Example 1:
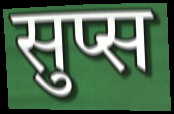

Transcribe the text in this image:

सुप्स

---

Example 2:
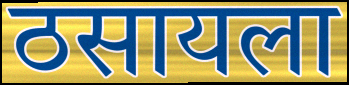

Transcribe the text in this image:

ठसायला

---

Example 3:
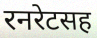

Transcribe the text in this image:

रनरेटसह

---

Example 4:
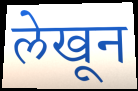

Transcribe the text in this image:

लेखून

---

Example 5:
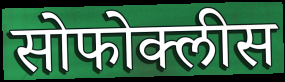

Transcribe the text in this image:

सोफोक्लीस